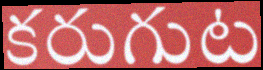
కరుగుట